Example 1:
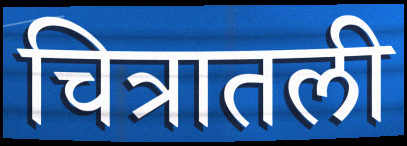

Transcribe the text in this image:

चित्रातली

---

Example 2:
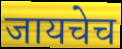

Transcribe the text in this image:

जायचेच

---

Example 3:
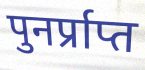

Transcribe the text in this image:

पुनर्प्राप्त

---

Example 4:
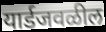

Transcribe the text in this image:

यार्डजवळील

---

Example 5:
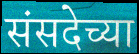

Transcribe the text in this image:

संसदेच्या